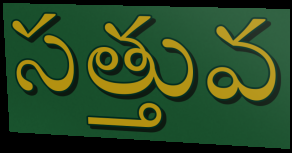
సత్తువ